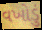
વખોડું